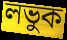
লভুক